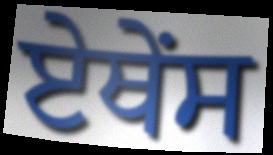
ਏਥੇਂਸ